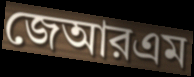
জেআরএম